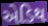
એડિથ